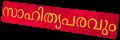
സാഹിത്യപരവും